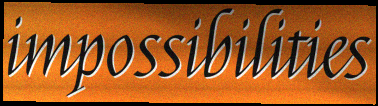
impossibilities